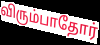
விரும்பாதோர்